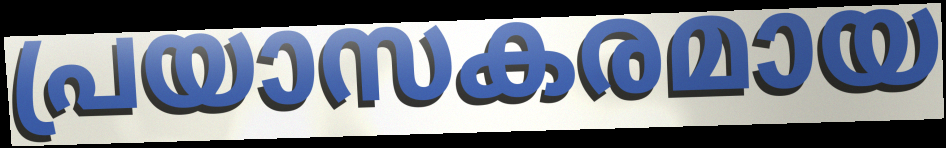
പ്രയാസകരമായ